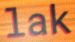
lak